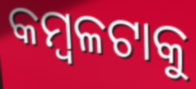
କମ୍ବଳଟାକୁ